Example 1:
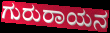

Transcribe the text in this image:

ಗುರುರಾಯನ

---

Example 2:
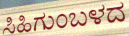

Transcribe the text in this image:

ಸಿಹಿಗುಂಬಳದ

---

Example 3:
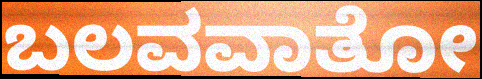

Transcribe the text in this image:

ಬಲವವಾತೋ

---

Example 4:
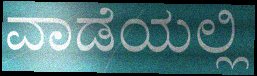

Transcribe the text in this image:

ವಾಡೆಯಲ್ಲಿ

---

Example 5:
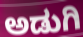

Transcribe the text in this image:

ಅಡುಗಿ